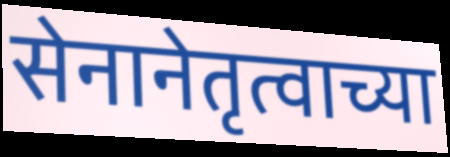
सेनानेतृत्वाच्या